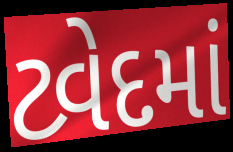
ટ્વેદમાં